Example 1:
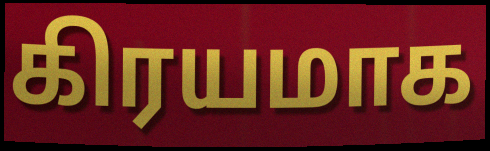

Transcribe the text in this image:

கிரயமாக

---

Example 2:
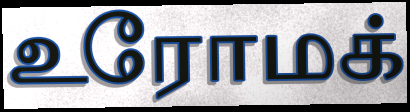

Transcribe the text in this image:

உரோமக்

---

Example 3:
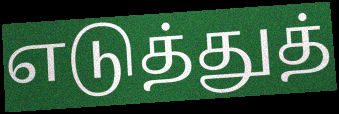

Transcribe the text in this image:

எடுத்துத்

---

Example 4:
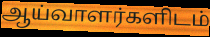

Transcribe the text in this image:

ஆய்வாளர்களிடம்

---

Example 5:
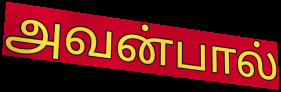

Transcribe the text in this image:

அவன்பால்